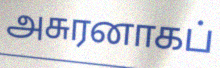
அசுரனாகப்